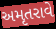
અમૃતરાવે